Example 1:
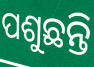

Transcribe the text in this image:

ପଶୁଛନ୍ତି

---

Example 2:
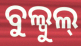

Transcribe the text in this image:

ବୁଲ୍ବୁଲ୍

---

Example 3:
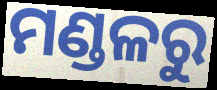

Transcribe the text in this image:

ମଣ୍ଡଳରୁ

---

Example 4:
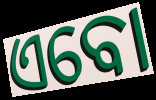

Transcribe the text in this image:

ଏବୋ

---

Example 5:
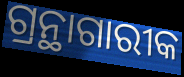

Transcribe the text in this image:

ଗ୍ରନ୍ଥାଗାରୀକ